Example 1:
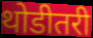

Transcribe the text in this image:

थोडीतरी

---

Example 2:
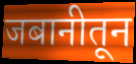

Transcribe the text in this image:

जबानीतून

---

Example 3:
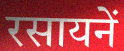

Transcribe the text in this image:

रसायनें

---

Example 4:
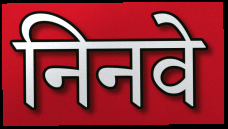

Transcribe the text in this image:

निनवे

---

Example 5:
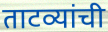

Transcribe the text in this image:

ताटव्यांची